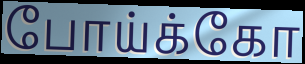
போய்க்கோ